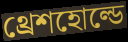
থ্রেশহোল্ডে